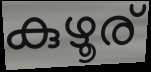
കുഴൂര്